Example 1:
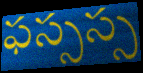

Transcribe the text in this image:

ఫస్సస్స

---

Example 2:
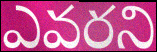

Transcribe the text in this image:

ఎవరని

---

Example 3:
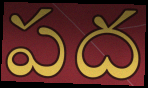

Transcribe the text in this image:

పద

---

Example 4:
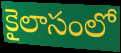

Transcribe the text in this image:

కైలాసంలో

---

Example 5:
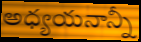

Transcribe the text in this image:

అధ్యయనాన్నీ